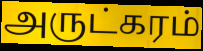
அருட்கரம்